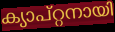
ക്യാപ്റ്റനായി